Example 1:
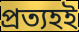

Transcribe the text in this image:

প্রত্যহই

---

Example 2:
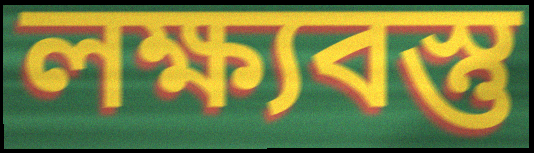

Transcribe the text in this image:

লক্ষ্যবস্তু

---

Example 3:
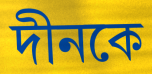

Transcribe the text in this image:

দীনকে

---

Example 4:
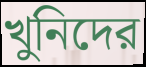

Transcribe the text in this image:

খুনিদের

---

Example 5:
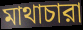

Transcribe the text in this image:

মাথাচারা